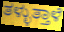
ತಳ್ಳುತ್ತಾಳೆ